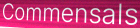
Commensals